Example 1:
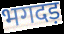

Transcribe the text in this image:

भगदड़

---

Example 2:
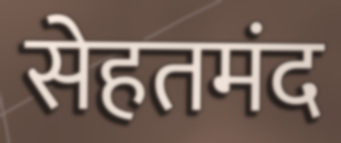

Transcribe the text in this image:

सेहतमंद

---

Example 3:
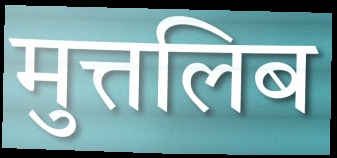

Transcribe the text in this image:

मुत्तलिब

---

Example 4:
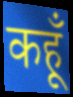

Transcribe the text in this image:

कहूँ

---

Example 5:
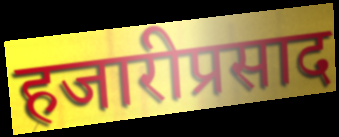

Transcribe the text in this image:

हजारीप्रसाद